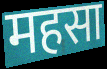
महसा